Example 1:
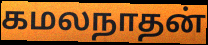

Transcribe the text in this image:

கமலநாதன்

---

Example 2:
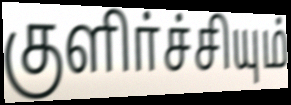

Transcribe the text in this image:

குளிர்ச்சியும்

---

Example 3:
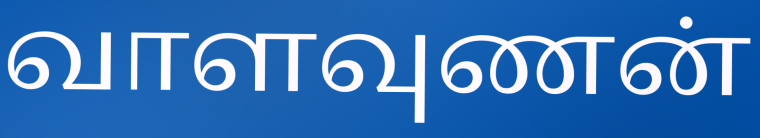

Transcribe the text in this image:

வாளவுணன்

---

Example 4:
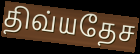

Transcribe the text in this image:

திவ்யதேச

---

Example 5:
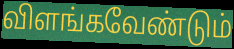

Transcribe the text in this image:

விளங்கவேண்டும்